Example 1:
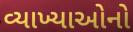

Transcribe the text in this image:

વ્યાખ્યાઓનો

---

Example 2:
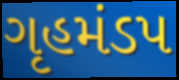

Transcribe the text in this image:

ગૃહમંડપ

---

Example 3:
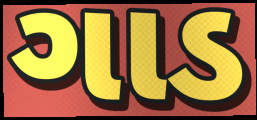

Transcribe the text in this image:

ગાડ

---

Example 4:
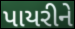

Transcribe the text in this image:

પાયરીને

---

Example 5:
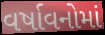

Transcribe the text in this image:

વર્ષાવનોમાં